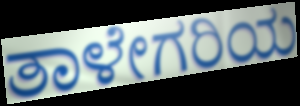
ತಾಳೇಗರಿಯ